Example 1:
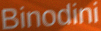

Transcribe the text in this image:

Binodini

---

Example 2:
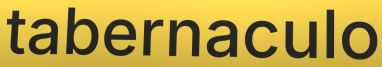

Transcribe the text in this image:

tabernaculo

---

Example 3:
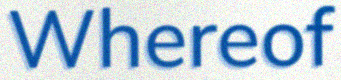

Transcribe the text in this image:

Whereof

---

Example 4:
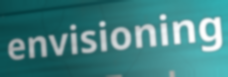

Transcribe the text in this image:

envisioning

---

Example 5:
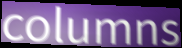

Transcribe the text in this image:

columns